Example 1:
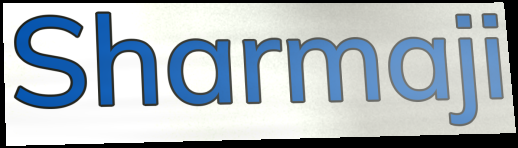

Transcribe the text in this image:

Sharmaji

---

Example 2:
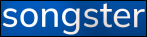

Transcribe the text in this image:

songster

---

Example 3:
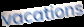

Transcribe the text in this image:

vacations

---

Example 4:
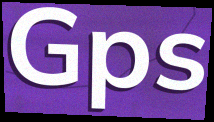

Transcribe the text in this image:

Gps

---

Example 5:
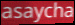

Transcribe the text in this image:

asaycha